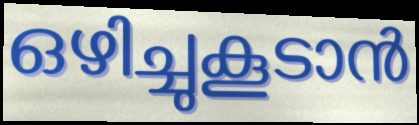
ഒഴിച്ചുകൂടാൻ